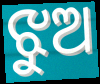
ଝୁଅ